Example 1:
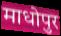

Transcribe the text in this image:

माधोपुर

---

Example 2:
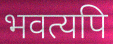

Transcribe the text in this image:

भवत्यपि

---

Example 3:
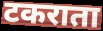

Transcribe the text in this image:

टकराता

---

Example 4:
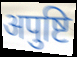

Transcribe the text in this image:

अपुष्टि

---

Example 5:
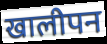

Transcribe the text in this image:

खालीपन